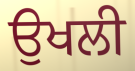
ਉਖਲੀ